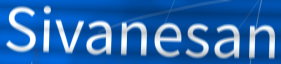
Sivanesan